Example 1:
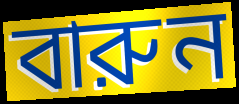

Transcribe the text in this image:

বারুন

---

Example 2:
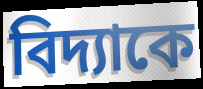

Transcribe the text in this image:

বিদ্যাকে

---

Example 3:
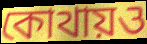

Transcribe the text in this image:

কোথায়ও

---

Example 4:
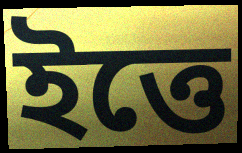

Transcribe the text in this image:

ইত্তে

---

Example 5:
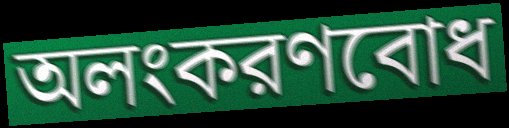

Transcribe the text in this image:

অলংকরণবোধ